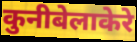
कुनीबेलाकेरे